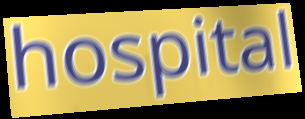
hospital